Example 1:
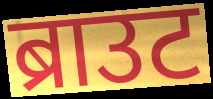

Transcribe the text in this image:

ब्राउट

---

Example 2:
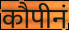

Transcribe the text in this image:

कौपीनं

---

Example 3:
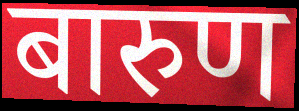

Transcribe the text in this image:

बारुण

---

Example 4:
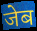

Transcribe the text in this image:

जेब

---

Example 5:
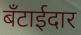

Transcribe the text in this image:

बँटाईदार